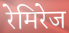
रेमिरेज